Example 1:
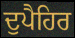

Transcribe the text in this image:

ਦੁਪੈਹਿਰ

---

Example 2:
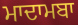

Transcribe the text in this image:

ਮਾਦਾਮਬਾ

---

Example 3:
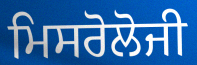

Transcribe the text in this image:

ਮਿਸਰੋਲੋਜੀ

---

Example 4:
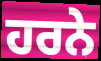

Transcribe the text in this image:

ਹਰਨੇ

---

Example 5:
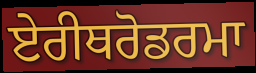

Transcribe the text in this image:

ਏਰੀਥਰੋਡਰਮਾ